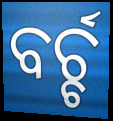
ବର୍ଚ୍ଚ